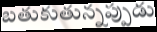
బతుకుతున్నప్పుడు